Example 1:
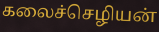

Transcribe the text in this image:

கலைச்செழியன்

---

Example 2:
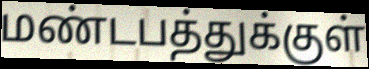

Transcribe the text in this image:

மண்டபத்துக்குள்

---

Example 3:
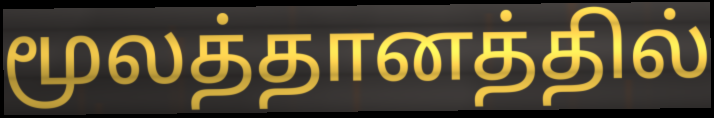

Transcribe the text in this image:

மூலத்தானத்தில்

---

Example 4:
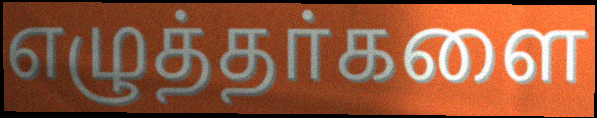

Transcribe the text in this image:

எழுத்தர்களை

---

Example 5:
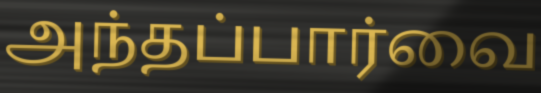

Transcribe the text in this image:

அந்தப்பார்வை